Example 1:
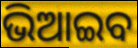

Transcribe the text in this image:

ଭିଆଇବ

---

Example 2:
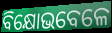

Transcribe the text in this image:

ବିକ୍ଷୋଭବେଳେ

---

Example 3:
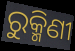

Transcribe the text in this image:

ରୁକ୍ମିଣୀ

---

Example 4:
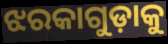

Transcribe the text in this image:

ଝରକାଗୁଡ଼ାକୁ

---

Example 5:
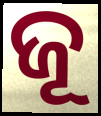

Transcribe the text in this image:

ଜୂ